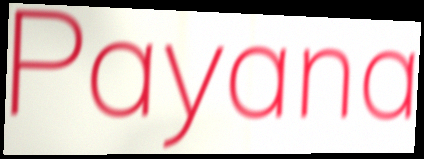
Payana